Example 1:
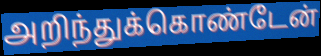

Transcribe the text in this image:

அறிந்துக்கொண்டேன்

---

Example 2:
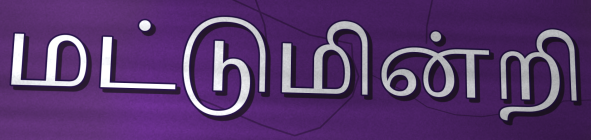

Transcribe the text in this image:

மட்டுமின்றி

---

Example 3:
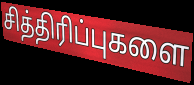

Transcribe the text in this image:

சித்திரிப்புகளை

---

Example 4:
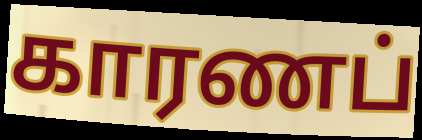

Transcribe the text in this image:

காரணப்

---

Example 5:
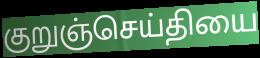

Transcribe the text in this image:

குறுஞ்செய்தியை